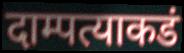
दाम्पत्याकडं